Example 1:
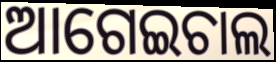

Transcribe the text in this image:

ଆଗେଇଚାଲ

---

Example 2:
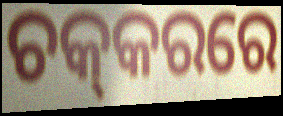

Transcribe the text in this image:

ଚକ୍‌କରରେ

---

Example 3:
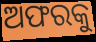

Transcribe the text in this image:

ଅଫରକୁ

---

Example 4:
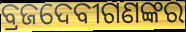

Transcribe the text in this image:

ବ୍ରଜଦେବୀଗଣଙ୍କର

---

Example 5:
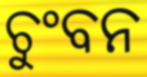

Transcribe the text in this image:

ଚୁଂବନ